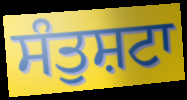
ਸੰਤੁਸ਼ਟਾ